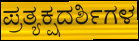
ಪ್ರತ್ಯಕ್ಷದರ್ಶಿಗಳ